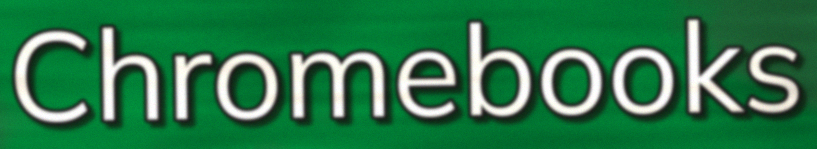
Chromebooks